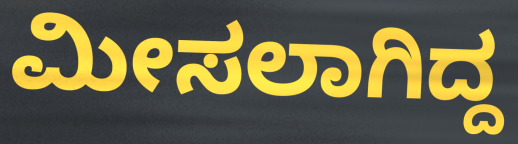
ಮೀಸಲಾಗಿದ್ದ